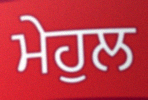
ਮੇਹੁਲ